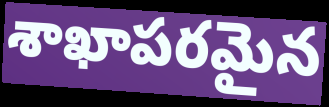
శాఖాపరమైన